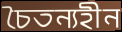
চৈতন্যহীন